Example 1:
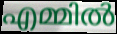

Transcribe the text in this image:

എമ്മിൽ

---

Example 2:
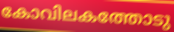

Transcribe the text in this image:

കോവിലകത്തോടു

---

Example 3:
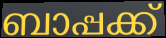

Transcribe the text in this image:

ബാപ്പക്ക്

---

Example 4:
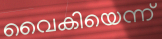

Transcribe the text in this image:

വൈകിയെന്ന്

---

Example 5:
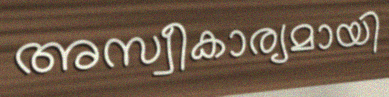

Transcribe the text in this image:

അസ്വീകാര്യമായി